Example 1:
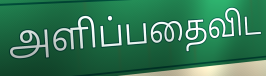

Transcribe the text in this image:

அளிப்பதைவிட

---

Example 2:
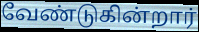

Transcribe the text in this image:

வேண்டுகின்றார்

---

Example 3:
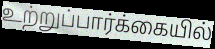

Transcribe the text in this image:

உற்றுப்பார்க்கையில்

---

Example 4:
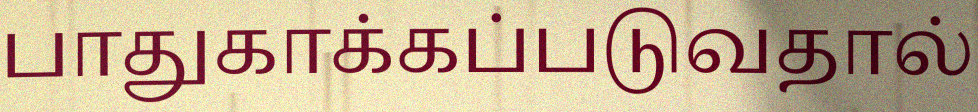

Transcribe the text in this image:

பாதுகாக்கப்படுவதால்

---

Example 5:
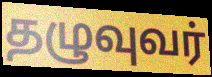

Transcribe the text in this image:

தழுவுவர்